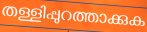
തള്ളിപ്പുറത്താക്കുക